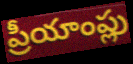
ప్రీయాంప్లు